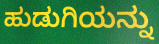
ಹುಡುಗಿಯನ್ನು